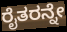
ರೈತರನ್ನೇ